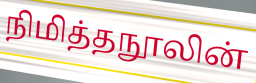
நிமித்தநூலின்